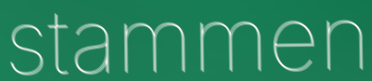
stammen